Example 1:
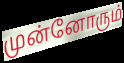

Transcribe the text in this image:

முன்னோரும்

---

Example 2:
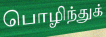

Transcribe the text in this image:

பொழிந்துக்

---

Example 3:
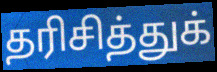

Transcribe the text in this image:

தரிசித்துக்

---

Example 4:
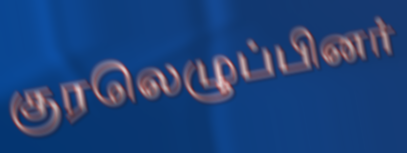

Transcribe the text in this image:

குரலெழுப்பினர்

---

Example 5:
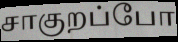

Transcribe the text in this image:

சாகுறப்போ